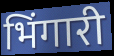
भिंगारी